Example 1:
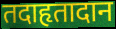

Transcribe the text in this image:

तदाहृतादान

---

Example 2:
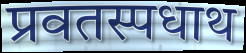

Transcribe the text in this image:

प्रवतस्पधाथ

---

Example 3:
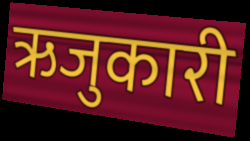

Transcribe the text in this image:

ऋजुकारी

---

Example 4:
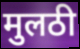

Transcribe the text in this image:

मुलठी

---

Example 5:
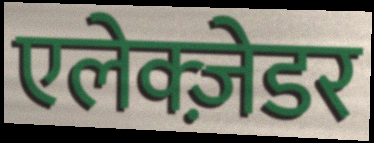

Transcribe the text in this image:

एलेक्ज़ेडर